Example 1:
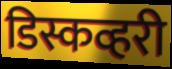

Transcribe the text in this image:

डिस्कव्हरी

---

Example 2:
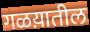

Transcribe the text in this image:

गळय़ातील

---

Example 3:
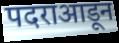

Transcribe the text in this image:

पदराआडून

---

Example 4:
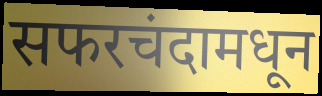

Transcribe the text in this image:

सफरचंदामधून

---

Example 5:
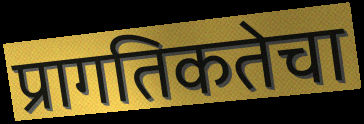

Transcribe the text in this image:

प्रागतिकतेचा